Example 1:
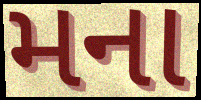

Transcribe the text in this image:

મના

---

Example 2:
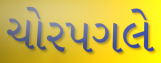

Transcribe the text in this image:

ચોરપગલે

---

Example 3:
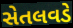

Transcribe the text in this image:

સેતલવડે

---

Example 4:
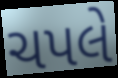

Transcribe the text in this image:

ચપલે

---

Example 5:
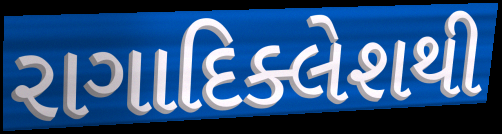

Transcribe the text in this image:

રાગાદિક્લેશથી